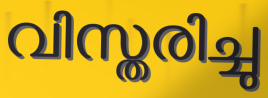
വിസ്തരിച്ചു